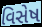
વિસેષ